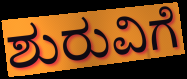
ಶುರುವಿಗೆ